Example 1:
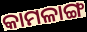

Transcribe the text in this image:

କାମଳାଙ୍ଗ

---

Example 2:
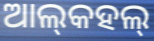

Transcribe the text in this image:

ଆଲ୍‌କହଲ୍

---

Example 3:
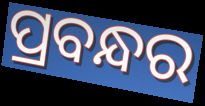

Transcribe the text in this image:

ପ୍ରବନ୍ଧର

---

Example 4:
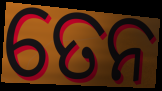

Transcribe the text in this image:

ତେନ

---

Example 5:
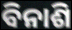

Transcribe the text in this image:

ବିନାଶି